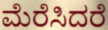
ಮೆರೆಸಿದರೆ